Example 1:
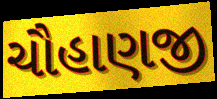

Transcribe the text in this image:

ચૌહાણજી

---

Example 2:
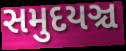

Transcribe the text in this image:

સમુદયઞ્ચ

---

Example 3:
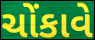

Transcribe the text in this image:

ચોંકાવે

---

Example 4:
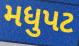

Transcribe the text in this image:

મધુપટ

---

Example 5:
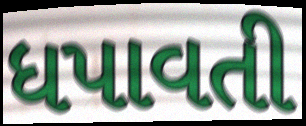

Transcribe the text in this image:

ધપાવતી